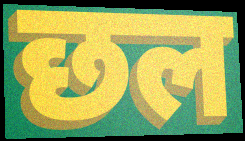
छल